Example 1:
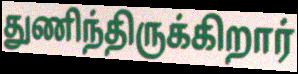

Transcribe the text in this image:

துணிந்திருக்கிறார்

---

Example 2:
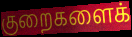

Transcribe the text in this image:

குறைகளைக்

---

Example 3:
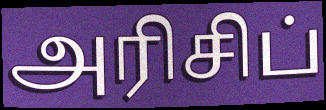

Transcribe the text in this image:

அரிசிப்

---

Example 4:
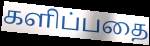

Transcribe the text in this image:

களிப்பதை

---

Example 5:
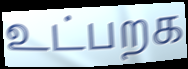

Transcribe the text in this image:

உட்பறக